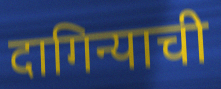
दागिन्याची